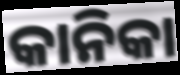
କାନିକା